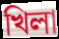
খিলা